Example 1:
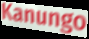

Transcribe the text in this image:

Kanungo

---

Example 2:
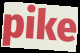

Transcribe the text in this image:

pike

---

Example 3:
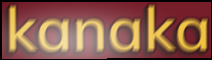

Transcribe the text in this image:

kanaka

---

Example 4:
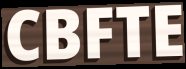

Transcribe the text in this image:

CBFTE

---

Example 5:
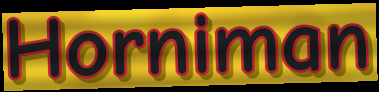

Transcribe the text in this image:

Horniman